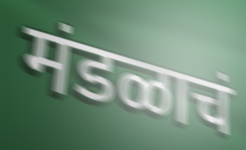
मंडळाचं